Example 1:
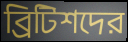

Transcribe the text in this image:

ব্রিটিশদের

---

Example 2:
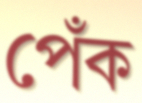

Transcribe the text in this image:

পেঁক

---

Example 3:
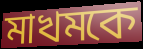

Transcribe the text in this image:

মাখমকে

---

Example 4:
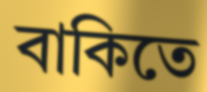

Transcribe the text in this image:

বাকিতে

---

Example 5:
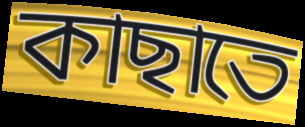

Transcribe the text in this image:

কাছাতে